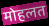
मोहलत